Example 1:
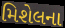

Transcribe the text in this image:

મિશેલના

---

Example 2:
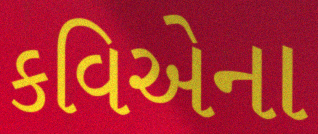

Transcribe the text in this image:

કવિએના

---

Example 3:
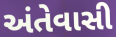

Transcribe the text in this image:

અંતેવાસી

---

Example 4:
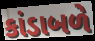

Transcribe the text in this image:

કાંડાબળે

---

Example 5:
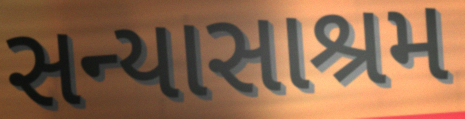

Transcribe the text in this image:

સન્યાસાશ્રમ